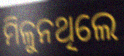
ମିଳୁନଥିଲେ